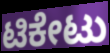
ಟಿಕೇಟು